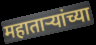
महाताऱ्यांच्या